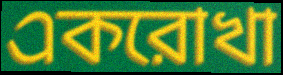
একরোখা